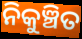
ନିକୁଞ୍ଚିତ